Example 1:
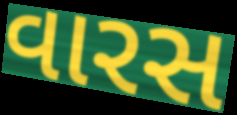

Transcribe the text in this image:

વારસ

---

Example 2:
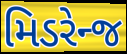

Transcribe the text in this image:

મિડરેન્જ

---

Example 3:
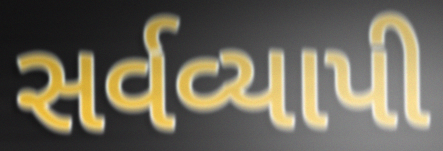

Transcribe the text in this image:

સર્વવ્યાપી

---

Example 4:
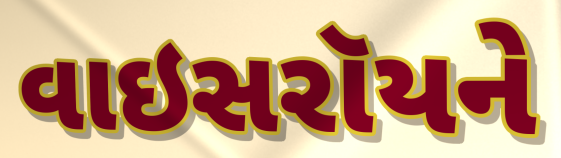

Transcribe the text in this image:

વાઇસરૉયને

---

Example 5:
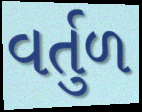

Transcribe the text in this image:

વર્તુળ